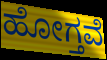
ಹೋಗ್ತವೆ